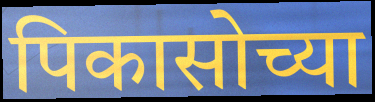
पिकासोच्या